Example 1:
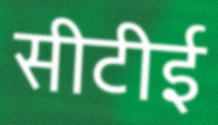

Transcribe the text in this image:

सीटीई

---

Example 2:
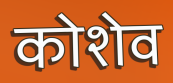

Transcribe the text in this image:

कोशेव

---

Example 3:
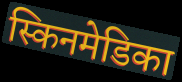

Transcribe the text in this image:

स्किनमेडिका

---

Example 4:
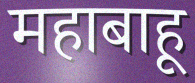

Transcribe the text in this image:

महाबाहू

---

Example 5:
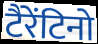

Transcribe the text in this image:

टैरेंटिनो